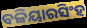
ବଳିୟାରସିଂହ